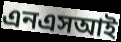
এনএসআই